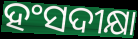
ହଂସଦୀକ୍ଷା